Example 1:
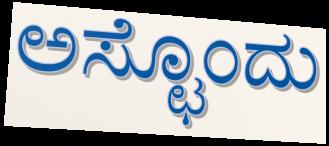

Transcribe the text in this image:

ಅಸ್ಟೊಂದು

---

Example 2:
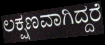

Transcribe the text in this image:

ಲಕ್ಷಣವಾಗಿದ್ದರೆ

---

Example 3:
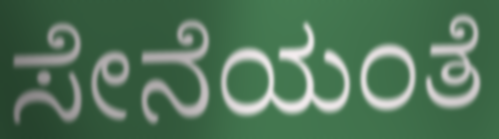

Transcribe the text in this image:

ಸೇನೆಯಂತೆ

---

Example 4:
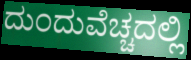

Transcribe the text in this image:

ದುಂದುವೆಚ್ಚದಲ್ಲಿ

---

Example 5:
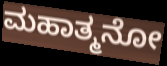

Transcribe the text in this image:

ಮಹಾತ್ಮನೋ